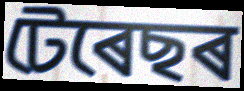
টেৰেছৰ